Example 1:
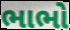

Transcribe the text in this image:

ભાભો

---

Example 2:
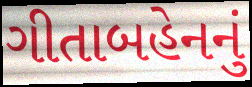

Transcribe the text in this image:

ગીતાબહેનનું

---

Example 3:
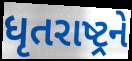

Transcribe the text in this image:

ધૃતરાષ્ટ્રને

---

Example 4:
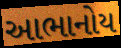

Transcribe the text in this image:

આભાનોય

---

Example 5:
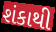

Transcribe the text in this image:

શંકાથી